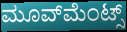
ಮೂವ್‌ಮೆಂಟ್ಸ್